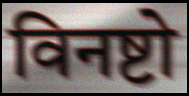
विनष्टो